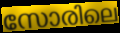
സോരിലെ